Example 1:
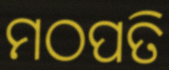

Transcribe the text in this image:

ମଠପତି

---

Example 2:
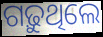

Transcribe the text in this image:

ଗଢ଼ୁଥିଲେ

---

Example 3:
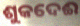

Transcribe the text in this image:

ଶୁକଦେଈ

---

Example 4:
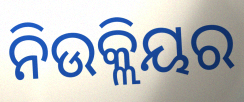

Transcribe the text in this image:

ନିଉକ୍ଲିୟର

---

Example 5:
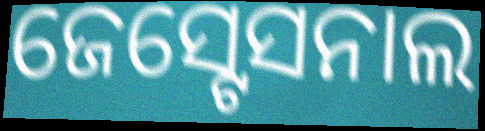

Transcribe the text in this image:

ଜେସ୍ଟେସନାଲ